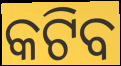
କଟିବ